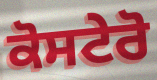
ਕੋਸਟੇਰੋ